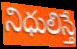
నిధులిస్తే